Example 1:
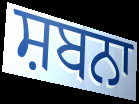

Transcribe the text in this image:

ਸ਼ਬਨਾ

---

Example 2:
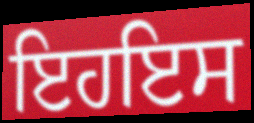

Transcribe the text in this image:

ਇਹਇਸ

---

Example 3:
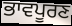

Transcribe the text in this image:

ਭਾਵਪੂਰਣ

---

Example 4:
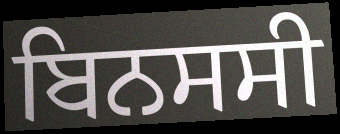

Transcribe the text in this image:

ਬਿਨਸਸੀ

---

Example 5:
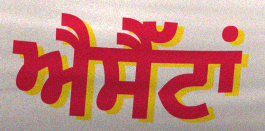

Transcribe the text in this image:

ਐਸੈੱਟਾਂ